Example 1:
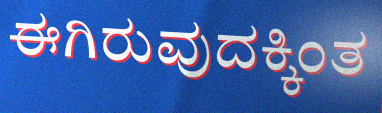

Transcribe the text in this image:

ಈಗಿರುವುದಕ್ಕಿಂತ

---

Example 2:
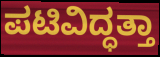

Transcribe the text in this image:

ಪಟಿವಿದ್ಧತ್ತಾ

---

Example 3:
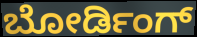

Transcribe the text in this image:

ಬೋರ್ಡಿಂಗ್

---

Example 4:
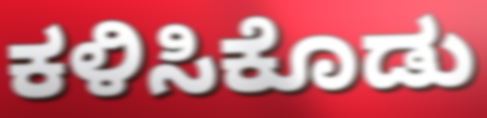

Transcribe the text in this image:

ಕಳಿಸಿಕೊಡು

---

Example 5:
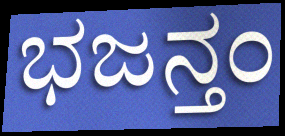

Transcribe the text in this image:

ಭಜನ್ತಂ